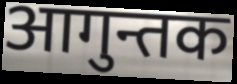
आगुन्तक